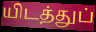
யிடத்துப்